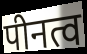
पीनत्व